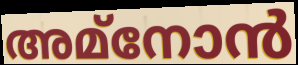
അമ്നോൻ